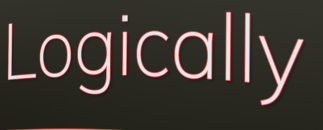
Logically